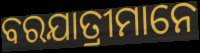
ବରଯାତ୍ରୀମାନେ